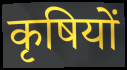
कृषियों